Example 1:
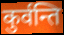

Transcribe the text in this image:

कुर्वन्ति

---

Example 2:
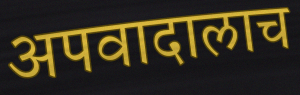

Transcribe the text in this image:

अपवादालाच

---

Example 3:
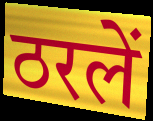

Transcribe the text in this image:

ठरलें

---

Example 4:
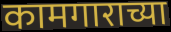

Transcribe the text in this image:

कामगाराच्या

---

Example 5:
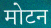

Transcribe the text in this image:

मोटन